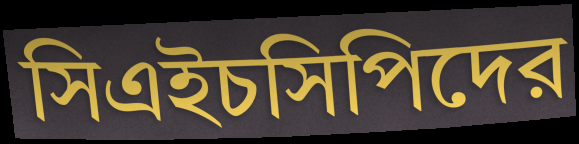
সিএইচসিপিদের